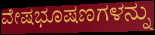
ವೇಷಭೂಷಣಗಳನ್ನು